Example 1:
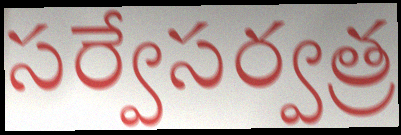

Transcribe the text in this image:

సర్వేసర్వత్ర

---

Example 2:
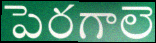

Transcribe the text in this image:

పెరగాలె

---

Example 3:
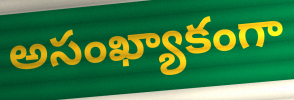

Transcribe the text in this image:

అసంఖ్యాకంగా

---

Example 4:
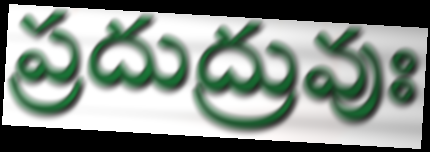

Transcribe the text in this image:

ప్రదుద్రువుః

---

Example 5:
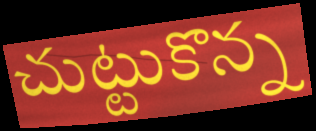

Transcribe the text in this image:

చుట్టుకొన్న